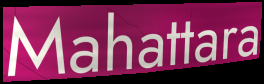
Mahattara